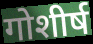
गोशीर्ष